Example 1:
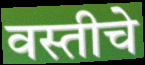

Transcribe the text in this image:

वस्तीचे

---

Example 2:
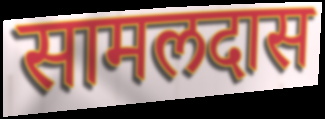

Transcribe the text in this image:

सामलदास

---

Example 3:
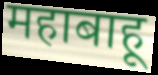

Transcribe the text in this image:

महाबाहू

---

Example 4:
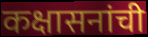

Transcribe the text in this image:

कक्षासनांची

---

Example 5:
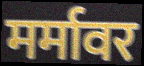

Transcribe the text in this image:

मर्मावर